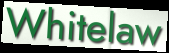
Whitelaw